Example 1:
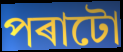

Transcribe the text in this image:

পৰাটো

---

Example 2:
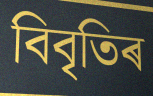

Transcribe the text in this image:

বিবৃতিৰ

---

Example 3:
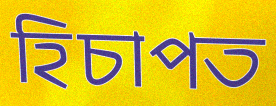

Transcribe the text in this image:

হিচাপত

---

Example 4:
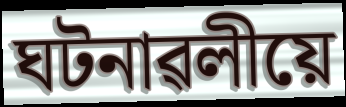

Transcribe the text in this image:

ঘটনাৱলীয়ে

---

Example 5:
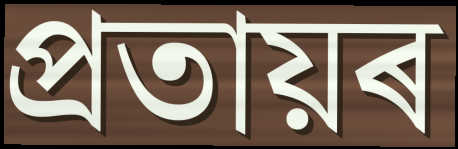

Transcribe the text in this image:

প্ৰতায়ৰ